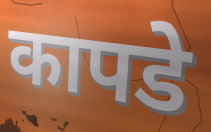
कापडे